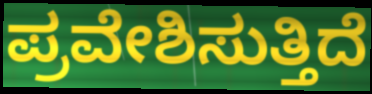
ಪ್ರವೇಶಿಸುತ್ತಿದೆ